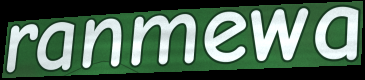
ranmewa